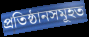
প্ৰতিষ্ঠানসমূহত